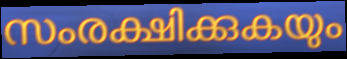
സംരക്ഷിക്കുകയും